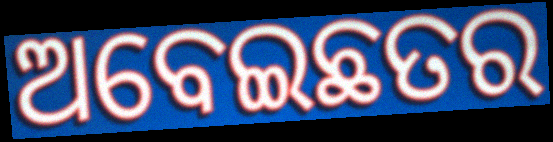
ଅବେଇଛତର